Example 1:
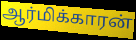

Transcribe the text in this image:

ஆர்மிக்காரன்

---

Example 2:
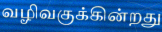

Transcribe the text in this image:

வழிவகுக்கின்றது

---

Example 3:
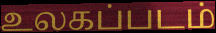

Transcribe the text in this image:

உலகப்படம்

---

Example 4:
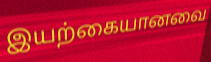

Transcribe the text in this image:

இயற்கையானவை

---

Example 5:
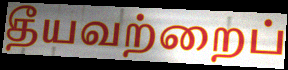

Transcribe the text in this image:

தீயவற்றைப்